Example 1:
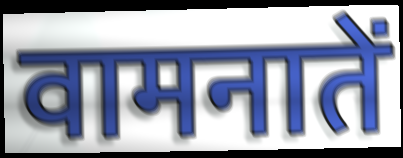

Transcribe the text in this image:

वामनातें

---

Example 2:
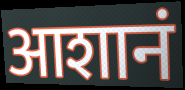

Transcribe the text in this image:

आशानं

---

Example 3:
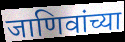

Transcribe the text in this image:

जाणिवांच्या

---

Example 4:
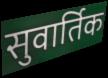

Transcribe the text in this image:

सुवार्तिक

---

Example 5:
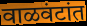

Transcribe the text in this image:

वाळवंटांत